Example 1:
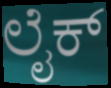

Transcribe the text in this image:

ಲೈಕ್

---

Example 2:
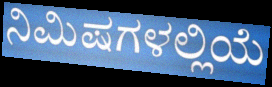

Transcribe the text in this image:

ನಿಮಿಷಗಳಲ್ಲಿಯೆ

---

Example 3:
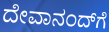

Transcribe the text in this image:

ದೇವಾನಂದ್‌ಗೆ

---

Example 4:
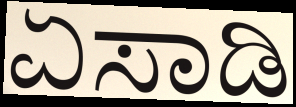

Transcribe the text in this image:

ಏಸಾಡಿ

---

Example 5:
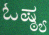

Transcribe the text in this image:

ಓಷ್ಠ್ಯ